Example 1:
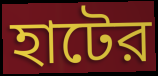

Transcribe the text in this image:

হাটের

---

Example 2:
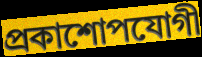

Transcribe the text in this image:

প্রকাশোপযোগী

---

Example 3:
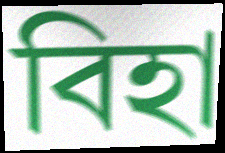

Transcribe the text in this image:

বিহা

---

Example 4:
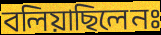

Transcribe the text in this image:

বলিয়াছিলেনঃ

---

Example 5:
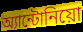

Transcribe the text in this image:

অ্যান্টোনিয়ো